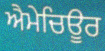
ਐਮੇਚਿਊਰ